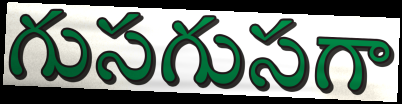
గుసగుసగా